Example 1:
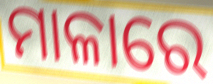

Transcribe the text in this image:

ମାଳାରେ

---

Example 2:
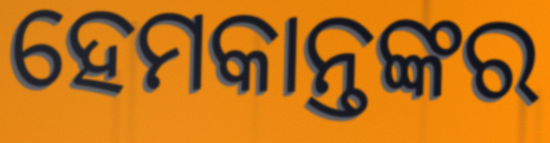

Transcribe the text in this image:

ହେମକାନ୍ତଙ୍କର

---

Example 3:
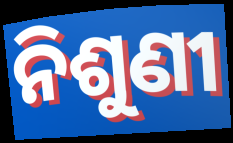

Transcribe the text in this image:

ନିଶୁଣୀ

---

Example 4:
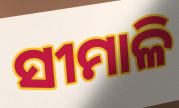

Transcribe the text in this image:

ସୀମାଳି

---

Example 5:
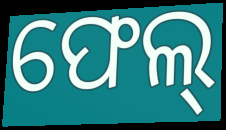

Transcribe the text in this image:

ଫେଲ୍